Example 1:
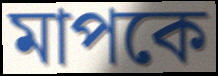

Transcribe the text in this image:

মাপকে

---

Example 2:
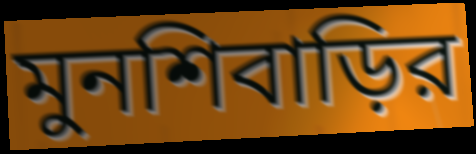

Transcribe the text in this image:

মুনশিবাড়ির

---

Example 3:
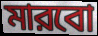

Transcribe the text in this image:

মারবো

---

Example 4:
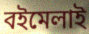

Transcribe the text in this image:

বইমেলাই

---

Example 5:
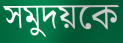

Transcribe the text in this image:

সমুদয়কে